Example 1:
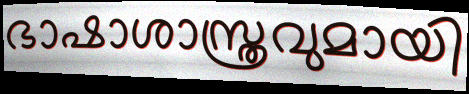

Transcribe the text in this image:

ഭാഷാശാസ്ത്രവുമായി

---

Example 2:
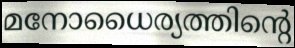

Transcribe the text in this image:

മനോധൈര്യത്തിന്റെ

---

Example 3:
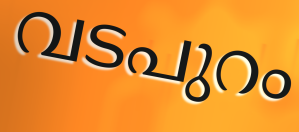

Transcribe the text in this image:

വടപുറം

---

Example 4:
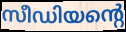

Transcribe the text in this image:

സീഡിയന്റെ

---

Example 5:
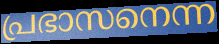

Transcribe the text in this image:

പ്രഭാസനെന്ന